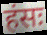
हंसः